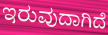
ಇರುವುದಾಗಿದೆ